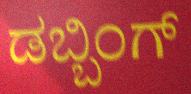
ಡಬ್ಬಿಂಗ್